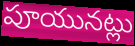
పూయునట్లు